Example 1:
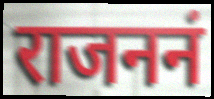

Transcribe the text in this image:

राजननं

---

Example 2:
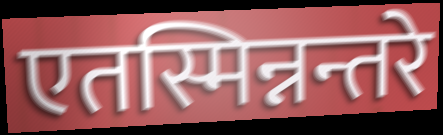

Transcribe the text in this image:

एतस्मिन्नन्तरे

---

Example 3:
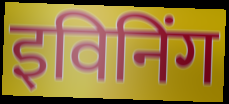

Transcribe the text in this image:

इविनिंग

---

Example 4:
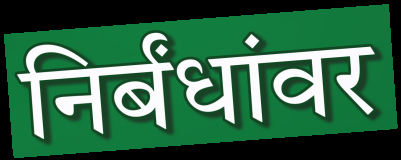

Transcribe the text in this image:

निर्बंधांवर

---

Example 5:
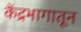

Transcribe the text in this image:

केंद्रभागातून